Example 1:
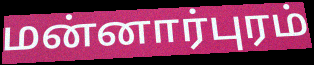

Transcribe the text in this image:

மன்னார்புரம்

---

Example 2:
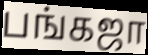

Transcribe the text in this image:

பங்கஜா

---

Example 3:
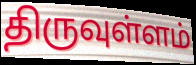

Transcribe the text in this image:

திருவுள்ளம்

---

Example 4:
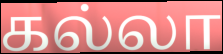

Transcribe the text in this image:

கல்லா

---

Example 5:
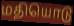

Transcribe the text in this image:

மதியொடு